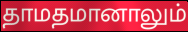
தாமதமானாலும்